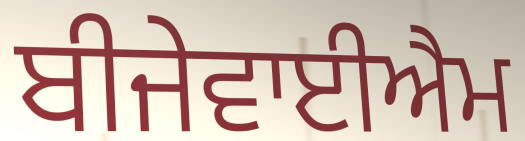
ਬੀਜੇਵਾਈਐਮ